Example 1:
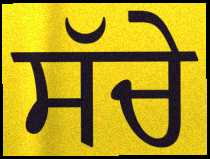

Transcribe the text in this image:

ਸੱਚੇ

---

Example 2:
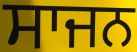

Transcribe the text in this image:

ਸਾਜਨ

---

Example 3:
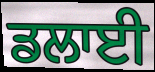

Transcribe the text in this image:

ਡਲਾਈ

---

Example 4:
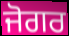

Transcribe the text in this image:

ਜੋਗਰ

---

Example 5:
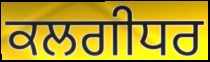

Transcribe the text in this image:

ਕਲਗੀਧਰ